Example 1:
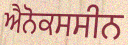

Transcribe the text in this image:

ਐਨੋਕਸਸੀਨ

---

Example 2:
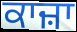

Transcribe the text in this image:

ਕਾਜ਼ਾ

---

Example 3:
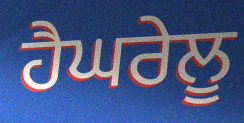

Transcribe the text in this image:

ਹੈਘਰੇਲੂ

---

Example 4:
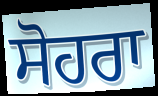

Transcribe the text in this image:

ਸੋਹਰਾ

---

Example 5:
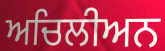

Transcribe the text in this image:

ਅਚਿਲੀਅਨ